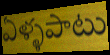
ఏళ్ళపాటు